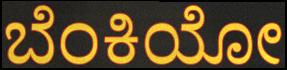
ಬೆಂಕಿಯೋ